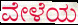
ವೇಳೆಯ